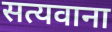
सत्यवाना